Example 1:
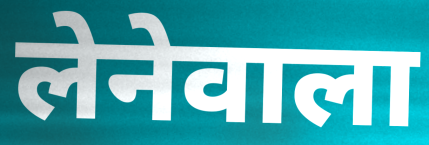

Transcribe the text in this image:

लेनेवाला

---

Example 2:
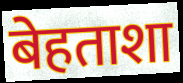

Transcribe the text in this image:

बेहताशा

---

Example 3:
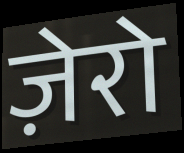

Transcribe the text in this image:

ज़ेरो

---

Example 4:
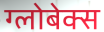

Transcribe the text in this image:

ग्लोबेक्स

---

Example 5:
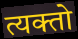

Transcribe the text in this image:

त्यक्तो